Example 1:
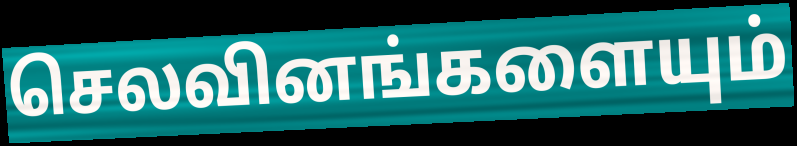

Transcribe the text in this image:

செலவினங்களையும்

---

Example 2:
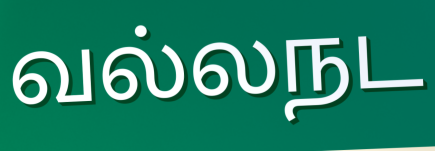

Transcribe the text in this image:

வல்லநட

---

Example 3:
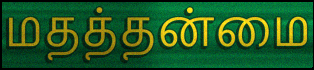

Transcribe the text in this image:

மதத்தன்மை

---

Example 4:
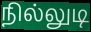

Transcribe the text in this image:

நில்லுடி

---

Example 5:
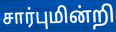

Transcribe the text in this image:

சார்புமின்றி